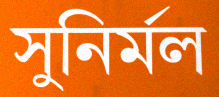
সুনির্মল